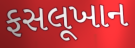
ફસલૂખાન